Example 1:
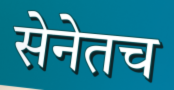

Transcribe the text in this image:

सेनेतच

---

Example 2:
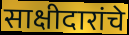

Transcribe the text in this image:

साक्षीदारांचे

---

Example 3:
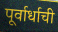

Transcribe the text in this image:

पूर्वार्धाची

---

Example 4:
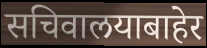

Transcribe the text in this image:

सचिवालयाबाहेर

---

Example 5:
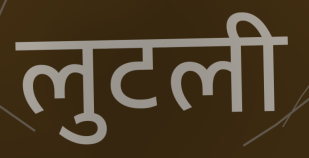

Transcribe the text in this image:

लुटली